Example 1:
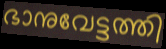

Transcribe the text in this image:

ഭാനുവേട്ടത്തി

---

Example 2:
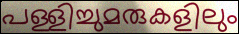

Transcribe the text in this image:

പള്ളിച്ചുമരുകളിലും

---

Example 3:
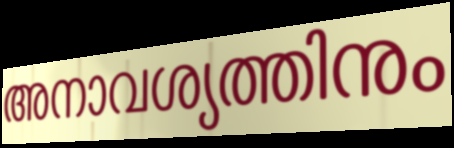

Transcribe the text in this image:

അനാവശ്യത്തിനും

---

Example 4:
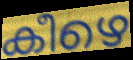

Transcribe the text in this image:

കീഴെ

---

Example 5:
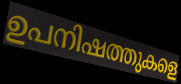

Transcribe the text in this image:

ഉപനിഷത്തുകളെ